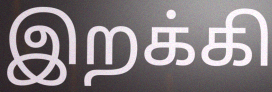
இறக்கி